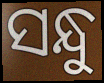
ସନ୍ଧୁ